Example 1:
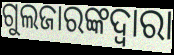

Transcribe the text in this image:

ଗୁଲଜାରଙ୍କଦ୍ୱାରା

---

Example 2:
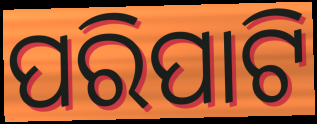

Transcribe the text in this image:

ପରିପାଟି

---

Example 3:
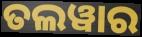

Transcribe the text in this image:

ତଲୱାର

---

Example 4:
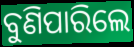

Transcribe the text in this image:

ବୁଣିପାରିଲେ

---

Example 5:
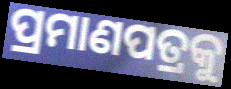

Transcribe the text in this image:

ପ୍ରମାଣପତ୍ରକୁ